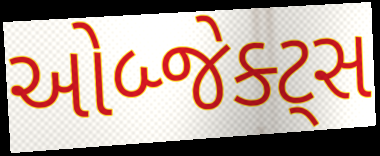
ઓબ્જેક્ટ્સ